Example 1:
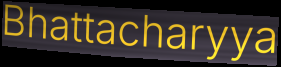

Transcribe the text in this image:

Bhattacharyya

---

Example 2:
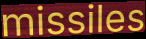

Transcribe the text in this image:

missiles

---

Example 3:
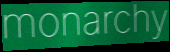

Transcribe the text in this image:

monarchy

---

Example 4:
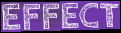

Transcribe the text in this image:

EFFECT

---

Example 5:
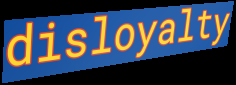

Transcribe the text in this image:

disloyalty